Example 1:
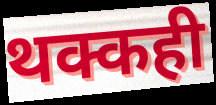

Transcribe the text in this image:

थक्कही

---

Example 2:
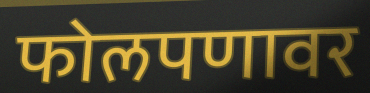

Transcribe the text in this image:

फोलपणावर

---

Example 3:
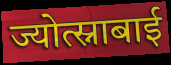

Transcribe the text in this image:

ज्योत्स्नाबाई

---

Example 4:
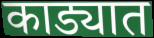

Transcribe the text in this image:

काड्यात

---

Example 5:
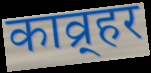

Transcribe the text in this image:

काव्र्हर